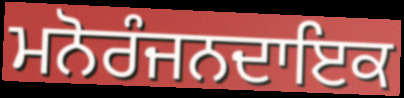
ਮਨੋਰੰਜਨਦਾਇਕ